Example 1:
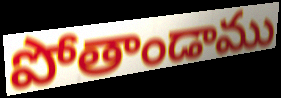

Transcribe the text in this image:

పోతాండాము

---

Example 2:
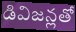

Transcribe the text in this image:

డివిజన్లతో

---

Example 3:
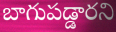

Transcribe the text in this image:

బాగుపడ్డారని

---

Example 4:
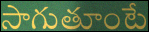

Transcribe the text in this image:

సాగుతూంటే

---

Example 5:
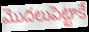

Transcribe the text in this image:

మొదలుపెట్టాకే